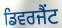
ਡਿਵਰਜੈਂਟ